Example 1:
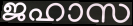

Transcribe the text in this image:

ജഹാസ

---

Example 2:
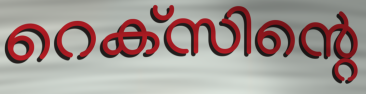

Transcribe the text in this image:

റെക്‌സിന്റെ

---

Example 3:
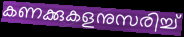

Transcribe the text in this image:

കണക്കുകളനുസരിച്ച്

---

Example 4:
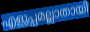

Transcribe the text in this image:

എളുപ്പമല്ലാതായി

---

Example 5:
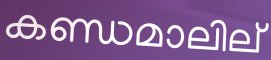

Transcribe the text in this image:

കണ്ഡമാലില്